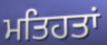
ਮਤਿਹਤਾਂ